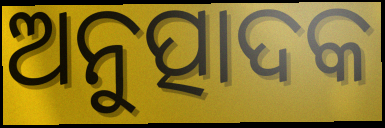
ଅନୁତ୍ପାଦକ